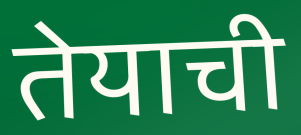
तेयाची